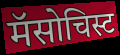
मॅसोचिस्ट